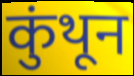
कुंथून